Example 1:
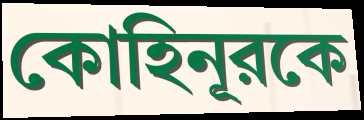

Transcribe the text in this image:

কোহিনূরকে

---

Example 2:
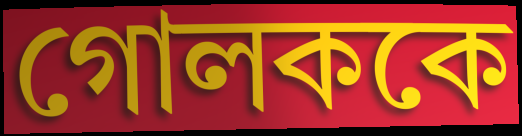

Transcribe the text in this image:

গোলককে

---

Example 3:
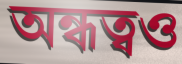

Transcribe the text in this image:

অন্ধত্বও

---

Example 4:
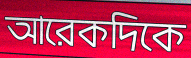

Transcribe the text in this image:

আরেকদিকে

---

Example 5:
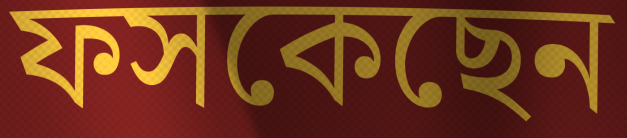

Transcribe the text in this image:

ফসকেছেন